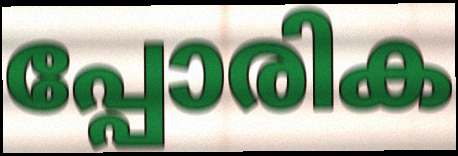
പ്പോരിക